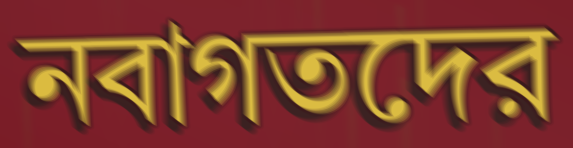
নবাগতদের